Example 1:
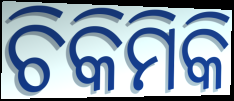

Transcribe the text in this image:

ଚିକିମିକି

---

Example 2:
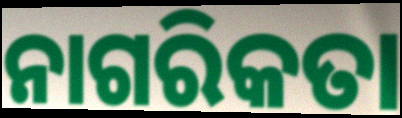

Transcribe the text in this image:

ନାଗରିକତା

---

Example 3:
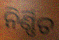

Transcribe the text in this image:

ନିର୍ଣ୍ଣିତ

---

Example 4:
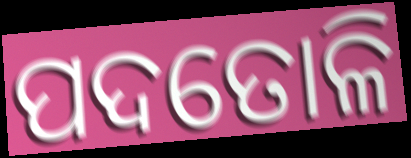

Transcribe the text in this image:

ପଦତୋଳି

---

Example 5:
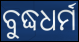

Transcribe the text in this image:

ବୁଦ୍ଧଧର୍ମ